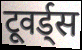
टूवर्ड्स